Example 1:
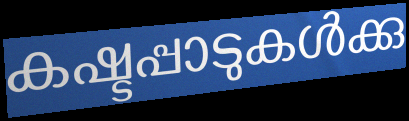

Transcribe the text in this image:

കഷ്ടപ്പാടുകൾക്കു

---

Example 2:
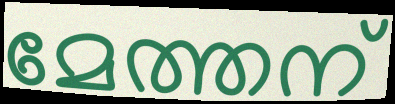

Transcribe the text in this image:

മേത്തന്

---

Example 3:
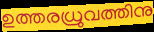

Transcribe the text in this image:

ഉത്തരധ്രുവത്തിനു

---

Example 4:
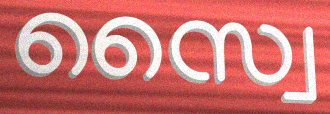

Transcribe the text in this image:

സ്വൈ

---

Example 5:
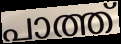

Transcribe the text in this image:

പാത്ത്